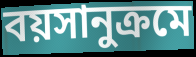
বয়সানুক্রমে